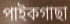
পাইকগাছা